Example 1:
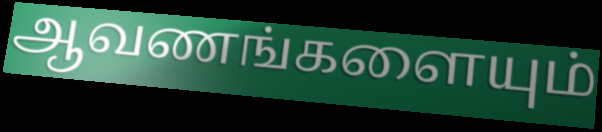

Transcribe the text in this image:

ஆவணங்களையும்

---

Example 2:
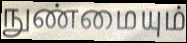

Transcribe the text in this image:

நுண்மையும்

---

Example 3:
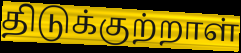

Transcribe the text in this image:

திடுக்குற்றாள்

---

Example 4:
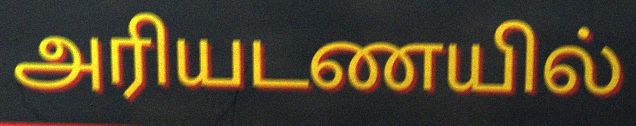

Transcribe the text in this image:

அரியடணயில்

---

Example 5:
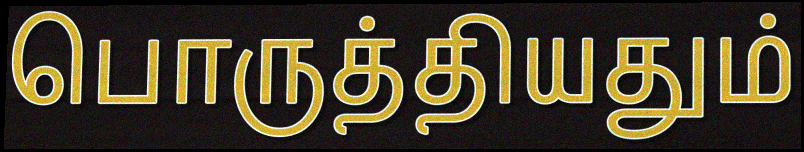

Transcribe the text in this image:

பொருத்தியதும்